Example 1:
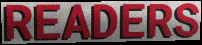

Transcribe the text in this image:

READERS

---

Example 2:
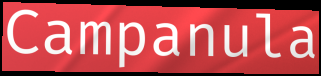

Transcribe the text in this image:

Campanula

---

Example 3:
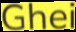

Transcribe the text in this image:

Ghei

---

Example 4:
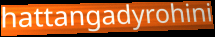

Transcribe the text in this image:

hattangadyrohini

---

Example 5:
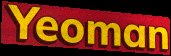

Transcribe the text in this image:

Yeoman